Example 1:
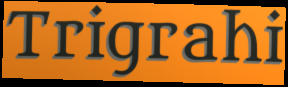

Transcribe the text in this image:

Trigrahi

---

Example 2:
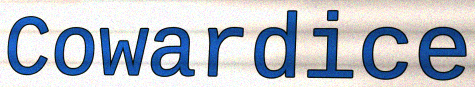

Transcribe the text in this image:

Cowardice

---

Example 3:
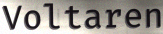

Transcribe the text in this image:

Voltaren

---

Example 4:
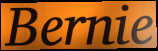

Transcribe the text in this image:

Bernie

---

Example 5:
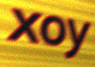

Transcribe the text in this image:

xoy